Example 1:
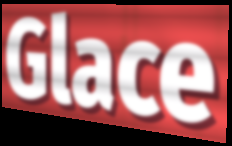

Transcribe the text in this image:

Glace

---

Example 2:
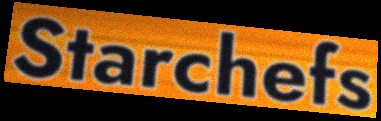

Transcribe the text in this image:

Starchefs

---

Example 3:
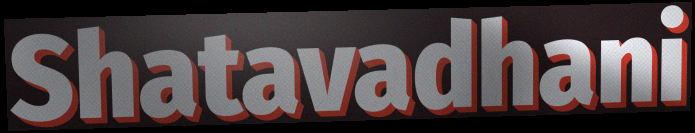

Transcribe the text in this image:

Shatavadhani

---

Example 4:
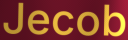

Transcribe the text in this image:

Jecob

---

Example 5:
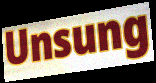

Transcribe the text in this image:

Unsung